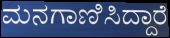
ಮನಗಾಣಿಸಿದ್ದಾರೆ